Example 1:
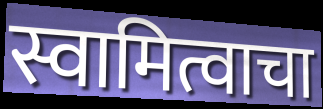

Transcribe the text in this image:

स्वामित्वाचा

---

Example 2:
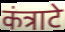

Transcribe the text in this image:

कंत्राटे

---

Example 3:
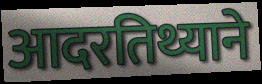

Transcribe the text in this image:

आदरतिथ्याने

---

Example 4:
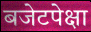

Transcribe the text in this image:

बजेटपेक्षा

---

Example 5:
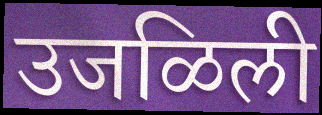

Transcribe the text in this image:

उजळिली